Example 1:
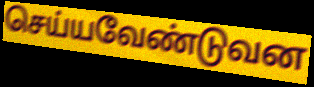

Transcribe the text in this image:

செய்யவேண்டுவன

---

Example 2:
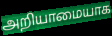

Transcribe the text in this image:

அறியாமையாக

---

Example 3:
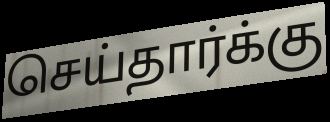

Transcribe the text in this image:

செய்தார்க்கு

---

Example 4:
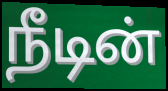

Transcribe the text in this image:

நீடின்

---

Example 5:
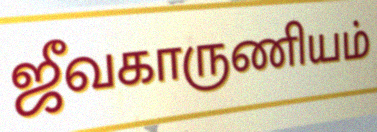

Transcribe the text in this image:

ஜீவகாருணியம்